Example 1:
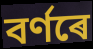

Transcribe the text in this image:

বৰ্ণৰে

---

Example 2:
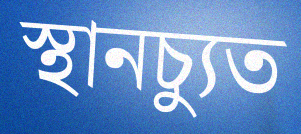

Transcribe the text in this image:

স্থানচ্যুত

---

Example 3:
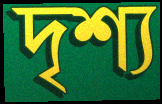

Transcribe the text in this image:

দৃশ্য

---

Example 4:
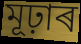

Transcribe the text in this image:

মূঢ়াৰ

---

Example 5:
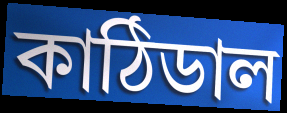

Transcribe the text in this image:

কাঠিডাল